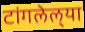
टांगलेल्या